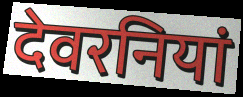
देवरनियां